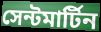
সেন্টমার্টিন